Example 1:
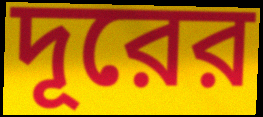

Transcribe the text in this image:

দূরের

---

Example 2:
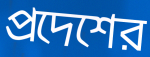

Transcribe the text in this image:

প্রদেশের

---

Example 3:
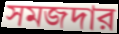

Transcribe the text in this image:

সমজদার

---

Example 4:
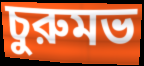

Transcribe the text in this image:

চুরুমভ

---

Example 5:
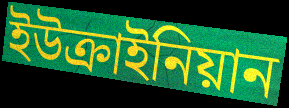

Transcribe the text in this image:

ইউক্রাইনিয়ান